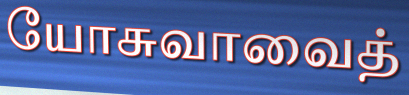
யோசுவாவைத்